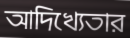
আদিখ্যেতার